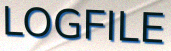
LOGFILE